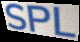
SPL